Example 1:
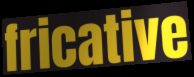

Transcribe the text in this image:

fricative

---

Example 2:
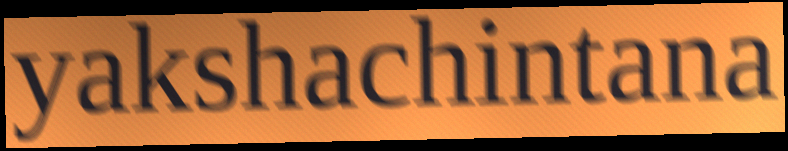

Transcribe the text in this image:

yakshachintana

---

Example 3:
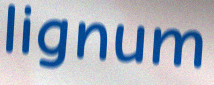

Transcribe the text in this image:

lignum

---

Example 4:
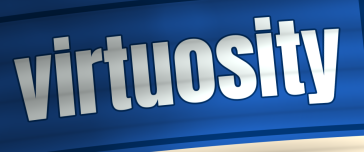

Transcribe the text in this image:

virtuosity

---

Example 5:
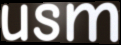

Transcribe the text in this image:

usm